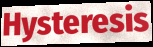
Hysteresis